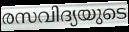
രസവിദ്യയുടെ